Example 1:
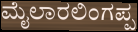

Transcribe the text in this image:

ಮೈಲಾರಲಿಂಗಪ್ಪ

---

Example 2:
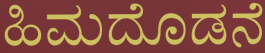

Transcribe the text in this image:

ಹಿಮದೊಡನೆ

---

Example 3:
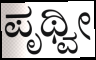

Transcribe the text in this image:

ಪೃಥ್ವೀ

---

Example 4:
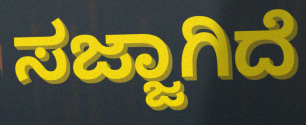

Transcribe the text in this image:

ಸಜ್ಜಾಗಿದೆ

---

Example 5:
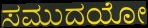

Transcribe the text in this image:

ಸಮುದಯೋ